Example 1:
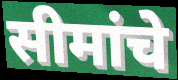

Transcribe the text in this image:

सीमांचे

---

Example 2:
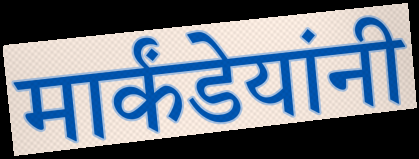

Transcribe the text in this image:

मार्कंडेयांनी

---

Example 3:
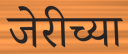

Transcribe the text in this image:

जेरीच्या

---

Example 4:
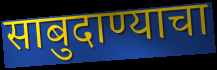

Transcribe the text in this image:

साबुदाण्याचा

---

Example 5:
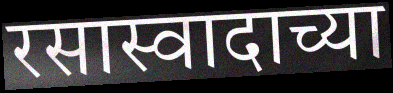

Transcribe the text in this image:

रसास्वादाच्या